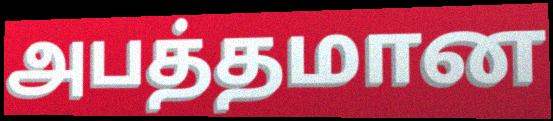
அபத்தமான